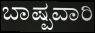
ಬಾಷ್ಪವಾರಿ